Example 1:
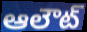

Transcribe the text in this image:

ఆలౌట్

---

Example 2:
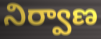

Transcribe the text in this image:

నిర్వాణ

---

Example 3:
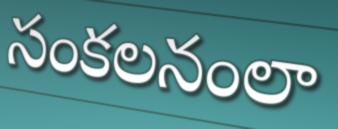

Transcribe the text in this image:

సంకలనంలా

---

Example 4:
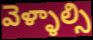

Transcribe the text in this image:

వెళ్ళాల్సి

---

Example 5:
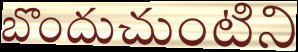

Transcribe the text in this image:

బొందుచుంటిని